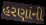
હરણાંની